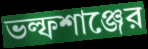
ভল্ফশাঞ্জের